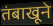
तंबाखूने